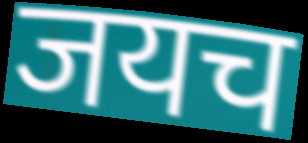
जयच